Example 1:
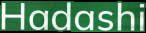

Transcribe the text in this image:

Hadashi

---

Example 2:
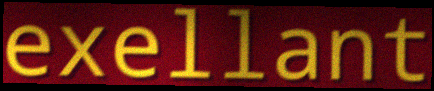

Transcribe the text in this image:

exellant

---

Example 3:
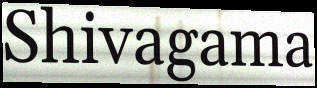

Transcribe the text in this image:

Shivagama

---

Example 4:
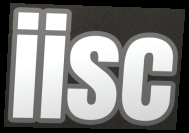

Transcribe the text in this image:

iisc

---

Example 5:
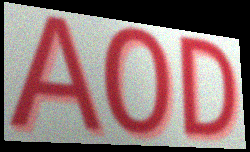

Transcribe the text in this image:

AOD